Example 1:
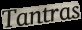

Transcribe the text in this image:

Tantras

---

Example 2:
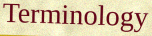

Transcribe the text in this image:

Terminology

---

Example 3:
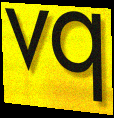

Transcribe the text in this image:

vq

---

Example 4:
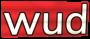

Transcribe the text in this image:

wud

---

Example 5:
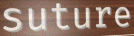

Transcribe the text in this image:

suture